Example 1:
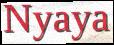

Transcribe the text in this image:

Nyaya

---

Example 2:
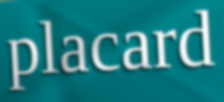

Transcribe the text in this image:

placard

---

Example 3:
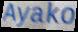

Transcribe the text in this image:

Ayako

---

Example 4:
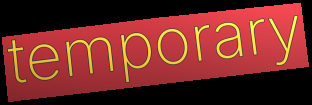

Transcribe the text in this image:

temporary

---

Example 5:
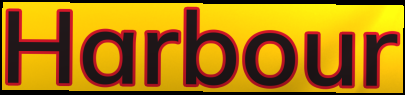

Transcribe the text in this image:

Harbour